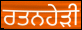
ਰਤਨਹੇੜੀ